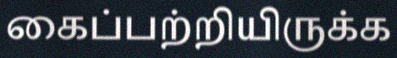
கைப்பற்றியிருக்க